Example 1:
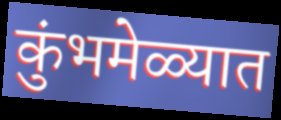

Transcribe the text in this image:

कुंभमेळ्यात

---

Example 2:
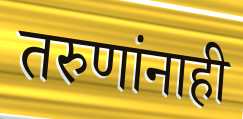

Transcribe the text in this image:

तरुणांनाही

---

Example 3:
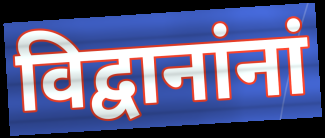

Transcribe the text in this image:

विद्वानांनां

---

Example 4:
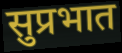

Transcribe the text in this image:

सुप्रभात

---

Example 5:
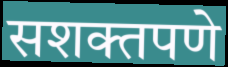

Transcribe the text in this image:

सशक्तपणे